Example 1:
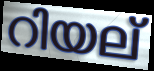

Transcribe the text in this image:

റിയല്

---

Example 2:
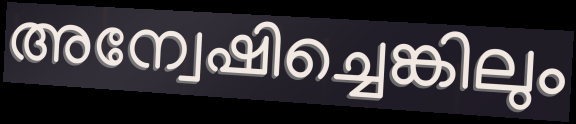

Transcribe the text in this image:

അന്വേഷിച്ചെങ്കിലും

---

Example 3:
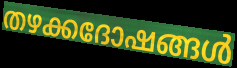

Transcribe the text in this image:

തഴക്കദോഷങ്ങൾ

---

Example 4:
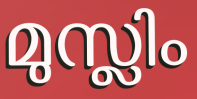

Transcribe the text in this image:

മുസ്ലിം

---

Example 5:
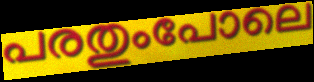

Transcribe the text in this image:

പരതുംപോലെ